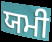
ਯਮੀ